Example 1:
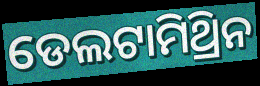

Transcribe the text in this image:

ଡେଲଟାମିଥ୍ରିନ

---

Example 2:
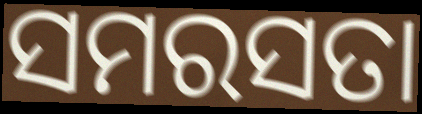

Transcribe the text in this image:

ସମରସତା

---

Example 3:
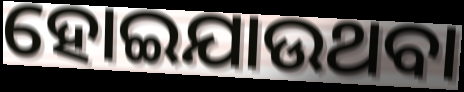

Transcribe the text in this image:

ହୋଇଯାଉଥବା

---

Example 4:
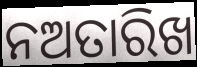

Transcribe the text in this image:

ନଅତାରିଖ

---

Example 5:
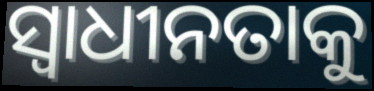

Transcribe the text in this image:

ସ୍ବାଧୀନତାକୁ